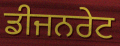
ਡੀਜਨਰੇਟ